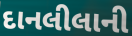
દાનલીલાની